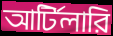
আর্টিলারি